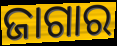
ଜାଗାର